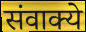
संवाक्ये